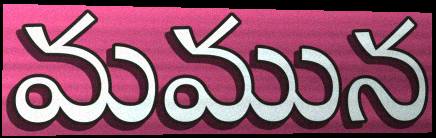
మమున